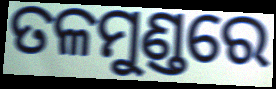
ତଳମୁଣ୍ଡରେ